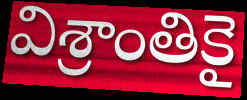
విశ్రాంతికై